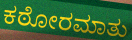
ಕಠೋರಮಾತು